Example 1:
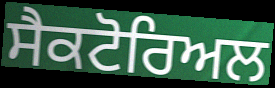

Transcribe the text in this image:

ਸੈਕਟੋਰਿਅਲ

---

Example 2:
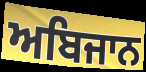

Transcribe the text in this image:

ਅਬਿਜਾਨ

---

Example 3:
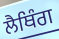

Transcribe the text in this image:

ਲੈਥਿੰਗ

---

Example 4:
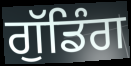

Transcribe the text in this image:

ਗੁੱਡਿੰਗ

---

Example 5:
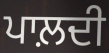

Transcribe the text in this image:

ਪਾਲ਼ਦੀ